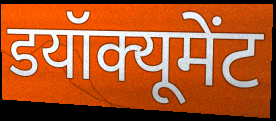
डयॉक्‍यूमेंट